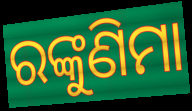
ରଙ୍କୁଣିମା